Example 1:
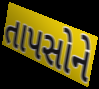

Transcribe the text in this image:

તાપસોને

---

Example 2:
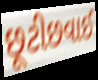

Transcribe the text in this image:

છૂટીછવાઈ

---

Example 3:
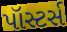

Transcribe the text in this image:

પૉસ્ટર્સ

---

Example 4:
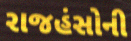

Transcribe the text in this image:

રાજહંસોની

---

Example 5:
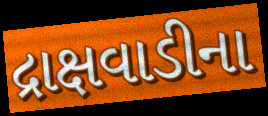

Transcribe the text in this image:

દ્રાક્ષવાડીના